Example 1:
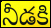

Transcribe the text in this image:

నీడకి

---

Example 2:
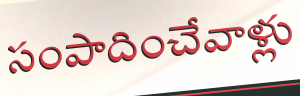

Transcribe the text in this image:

సంపాదించేవాళ్లు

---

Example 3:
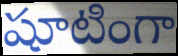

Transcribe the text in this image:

షూటింగా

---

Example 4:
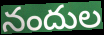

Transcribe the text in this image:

నందుల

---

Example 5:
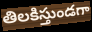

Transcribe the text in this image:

తిలకిస్తుండగా